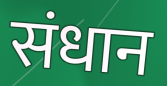
संधान